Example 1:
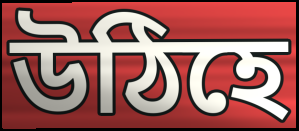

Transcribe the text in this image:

উঠিহে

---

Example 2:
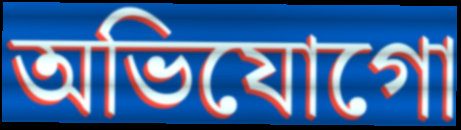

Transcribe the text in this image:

অভিযোগো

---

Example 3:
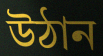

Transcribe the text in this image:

উঠান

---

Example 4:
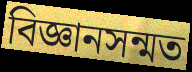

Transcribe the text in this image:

বিজ্ঞানসন্মত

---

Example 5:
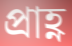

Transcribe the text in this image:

প্ৰাহ্ণ